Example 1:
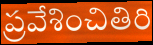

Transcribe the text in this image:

ప్రవేశించితిరి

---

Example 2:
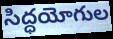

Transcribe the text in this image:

సిద్ధయోగుల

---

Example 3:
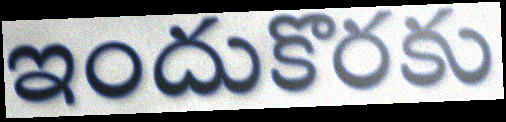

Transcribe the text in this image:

ఇందుకొరకు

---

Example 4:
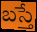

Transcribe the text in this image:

బస్తే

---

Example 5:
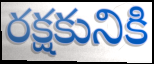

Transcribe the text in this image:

రక్షకునికి